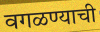
वगळण्याची